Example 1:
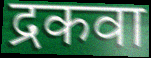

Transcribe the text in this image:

द्रकवा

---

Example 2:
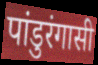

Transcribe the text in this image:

पांडुरंगासी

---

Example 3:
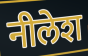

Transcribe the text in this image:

नीलेश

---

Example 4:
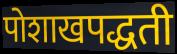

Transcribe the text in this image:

पोशाखपद्धती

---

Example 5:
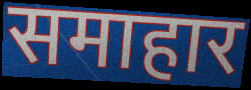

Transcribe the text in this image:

समाहार